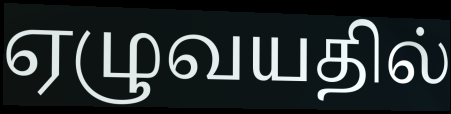
ஏழுவயதில்